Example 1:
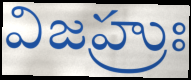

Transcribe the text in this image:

విజహ్రుః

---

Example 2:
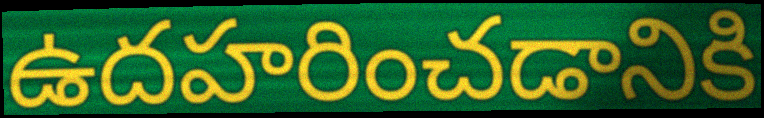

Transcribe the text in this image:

ఉదహరించడానికి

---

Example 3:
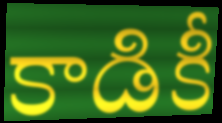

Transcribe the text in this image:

కాడికీ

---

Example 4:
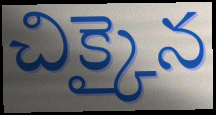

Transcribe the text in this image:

చిక్కైన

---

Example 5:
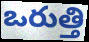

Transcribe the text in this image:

ఒరుత్తి